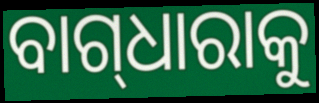
ବାଗ୍‌ଧାରାକୁ